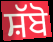
ਸ਼ੱਬੋ